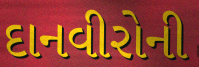
દાનવીરોની